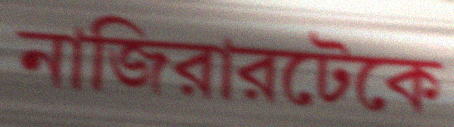
নাজিরারটেকে